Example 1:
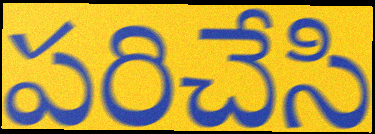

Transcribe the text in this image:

పరిచేసి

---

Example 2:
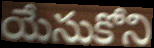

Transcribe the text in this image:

యేసుకోని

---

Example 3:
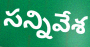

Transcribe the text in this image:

సన్నివేశ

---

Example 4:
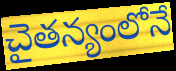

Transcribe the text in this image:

చైతన్యంలోనే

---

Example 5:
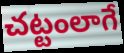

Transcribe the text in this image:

చట్టంలాగే